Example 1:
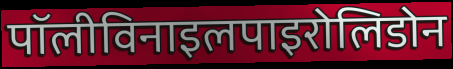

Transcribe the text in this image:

पॉलीविनाइलपाइरोलिडोन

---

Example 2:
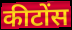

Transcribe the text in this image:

कीटोंस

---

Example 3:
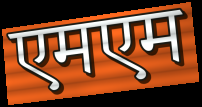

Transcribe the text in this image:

एमएम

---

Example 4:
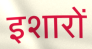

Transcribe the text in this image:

इशारों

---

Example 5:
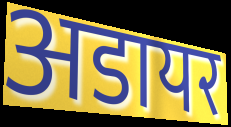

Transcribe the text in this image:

अडायर